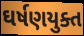
ઘર્ષણયુક્ત